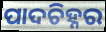
ପାଦଚିହ୍ନର